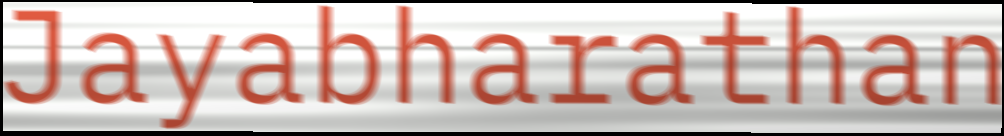
Jayabharathan